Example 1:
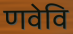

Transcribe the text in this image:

णवेवि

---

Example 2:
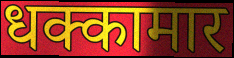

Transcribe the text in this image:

धक्कामार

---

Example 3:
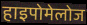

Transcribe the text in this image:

हाइपोमेलोज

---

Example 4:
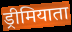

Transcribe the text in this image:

ड्रीमियाता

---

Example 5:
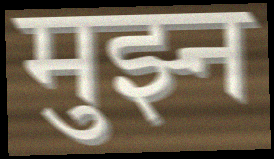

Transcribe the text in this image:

मुझ्न